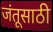
जंतूसाठी